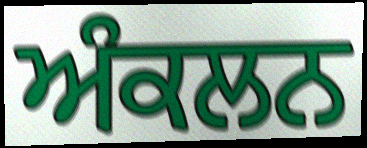
ਅੰਕਲਨ